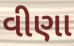
વીણા